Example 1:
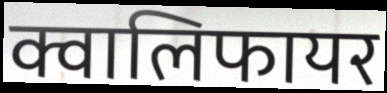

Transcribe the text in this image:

क्वालिफायर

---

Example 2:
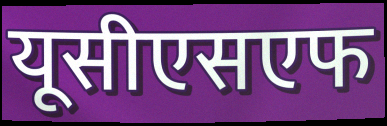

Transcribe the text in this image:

यूसीएसएफ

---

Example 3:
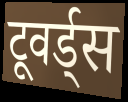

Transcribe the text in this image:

टूवर्ड्स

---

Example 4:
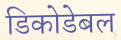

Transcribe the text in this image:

डिकोडेबल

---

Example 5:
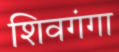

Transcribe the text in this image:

शिवगंगा